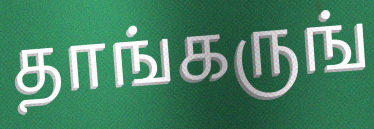
தாங்கருங்